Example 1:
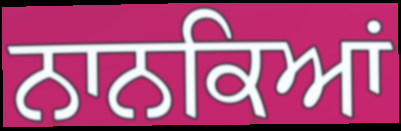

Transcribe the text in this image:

ਨਾਨਕਿਆਂ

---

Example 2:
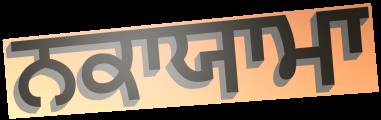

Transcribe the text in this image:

ਨਕਾਯਾਮਾ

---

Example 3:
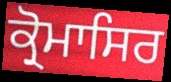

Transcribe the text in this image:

ਕ੍ਰੋਮਾਸਿਰ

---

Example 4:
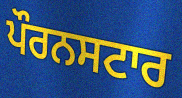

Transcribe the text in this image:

ਪੌਰਨਸਟਾਰ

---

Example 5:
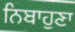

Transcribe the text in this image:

ਨਿਬਾਹੁਣਾ